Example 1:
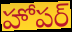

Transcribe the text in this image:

హోపర్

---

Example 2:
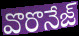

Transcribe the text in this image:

వొరొనేజ్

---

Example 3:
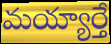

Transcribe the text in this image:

మయ్యార్తే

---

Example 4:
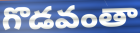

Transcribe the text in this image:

గొడవంతా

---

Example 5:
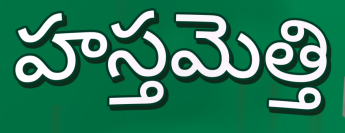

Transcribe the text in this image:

హస్తమెత్తి